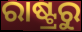
ରାଷ୍ଟ୍ରରୁ